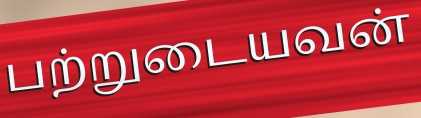
பற்றுடையவன்